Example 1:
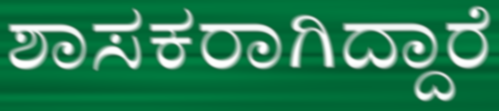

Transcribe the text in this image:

ಶಾಸಕರಾಗಿದ್ದಾರೆ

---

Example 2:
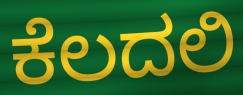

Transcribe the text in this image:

ಕೆಲದಲಿ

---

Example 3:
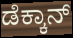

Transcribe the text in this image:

ಡೆಕ್ಕಾನ್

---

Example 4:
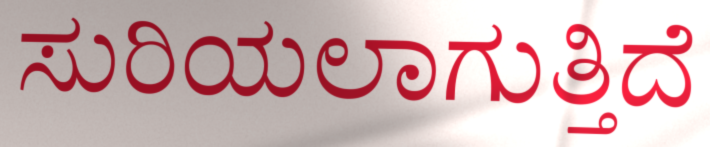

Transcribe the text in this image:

ಸುರಿಯಲಾಗುತ್ತಿದೆ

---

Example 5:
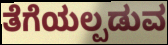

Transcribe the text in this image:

ತೆಗೆಯಲ್ಪಡುವ